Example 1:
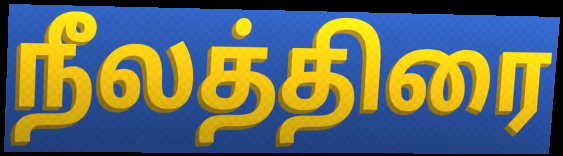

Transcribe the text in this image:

நீலத்திரை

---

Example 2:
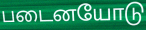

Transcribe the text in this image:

படைனயோடு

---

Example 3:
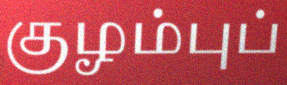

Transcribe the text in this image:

குழம்புப்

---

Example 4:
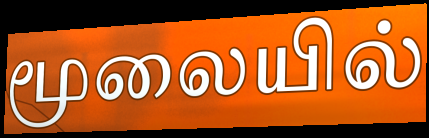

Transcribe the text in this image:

மூலையில்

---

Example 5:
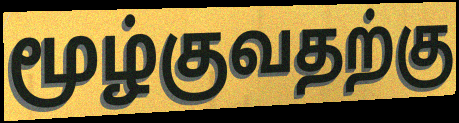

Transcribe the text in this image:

மூழ்குவதற்கு